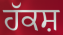
ਹੱਕਸ਼